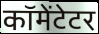
कॉमेंटेटर